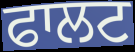
ਫਾਲਟ